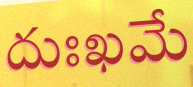
దుఃఖమే